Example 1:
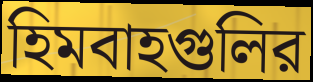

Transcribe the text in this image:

হিমবাহগুলির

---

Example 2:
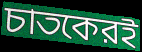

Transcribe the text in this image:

চাতকেরই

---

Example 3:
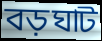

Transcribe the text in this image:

বড়ঘাট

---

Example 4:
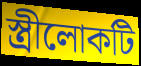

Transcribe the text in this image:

স্ত্রীলোকটি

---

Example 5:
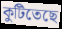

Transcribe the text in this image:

কুটিতেছে